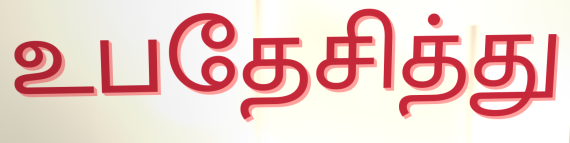
உபதேசித்து